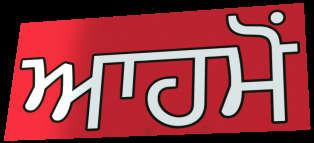
ਆਹਮੋਂ